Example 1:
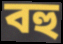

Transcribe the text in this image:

বহু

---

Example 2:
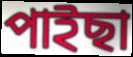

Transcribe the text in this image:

পাইছা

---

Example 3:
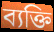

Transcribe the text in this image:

ব্যক্তি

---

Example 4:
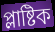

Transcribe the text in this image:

প্লাষ্টিক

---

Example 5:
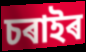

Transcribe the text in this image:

চৰাইৰ